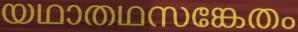
യഥാതഥസങ്കേതം